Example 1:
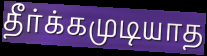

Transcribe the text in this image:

தீர்க்கமுடியாத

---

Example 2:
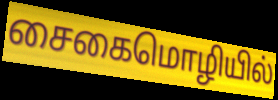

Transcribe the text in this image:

சைகைமொழியில்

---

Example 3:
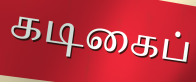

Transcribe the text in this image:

கடிகைப்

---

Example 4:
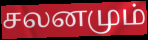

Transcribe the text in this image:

சலனமும்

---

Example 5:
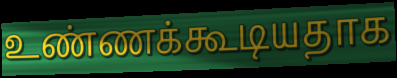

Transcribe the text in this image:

உண்ணக்கூடியதாக